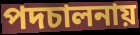
পদচালনায়